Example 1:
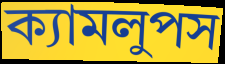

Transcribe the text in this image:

ক্যামলুপস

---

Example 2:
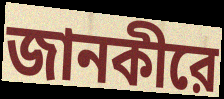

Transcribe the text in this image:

জানকীরে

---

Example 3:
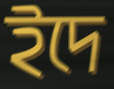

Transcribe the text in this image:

ইদে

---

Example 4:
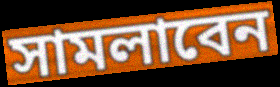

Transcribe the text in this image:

সামলাবেন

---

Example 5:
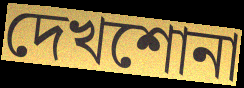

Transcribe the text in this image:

দেখশোনা